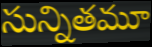
సున్నితమూ